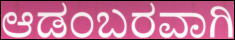
ಆಡಂಬರವಾಗಿ